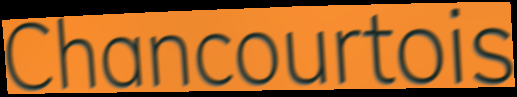
Chancourtois